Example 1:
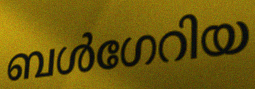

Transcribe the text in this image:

ബൾഗേറിയ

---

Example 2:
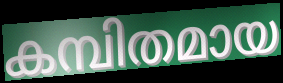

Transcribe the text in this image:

കമ്പിതമായ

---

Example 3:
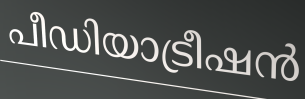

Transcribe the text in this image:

പീഡിയാട്രീഷൻ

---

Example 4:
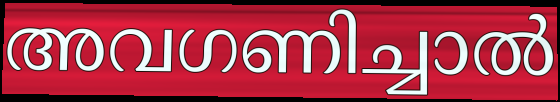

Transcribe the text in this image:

അവഗണിച്ചാൽ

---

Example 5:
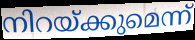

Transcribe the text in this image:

നിറയ്ക്കുമെന്ന്